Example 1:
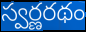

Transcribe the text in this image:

స్వర్ణరథం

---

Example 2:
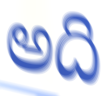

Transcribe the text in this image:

అది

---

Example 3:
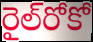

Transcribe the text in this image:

రైల్‌రోకో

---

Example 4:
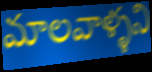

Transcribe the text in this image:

మాలవాళ్ళని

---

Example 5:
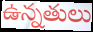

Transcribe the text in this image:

ఉన్నతులు